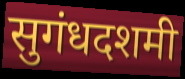
सुगंधदशमी